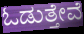
ಓಡುತ್ತೇವೆ